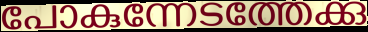
പോകുന്നേടത്തേക്കു